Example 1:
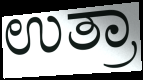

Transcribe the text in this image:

ಉತ್ರಾ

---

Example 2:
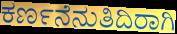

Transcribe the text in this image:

ಕರ್ಣನೆನುತಿದಿರಾಗಿ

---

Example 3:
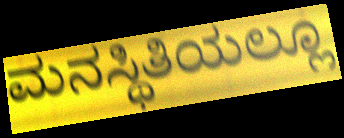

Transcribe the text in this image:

ಮನಸ್ಥಿತಿಯಲ್ಲೂ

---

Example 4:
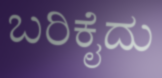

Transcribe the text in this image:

ಬರಿಕೈದು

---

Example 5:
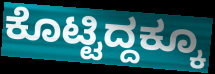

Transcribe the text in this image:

ಕೊಟ್ಟಿದ್ದಕ್ಕೂ